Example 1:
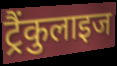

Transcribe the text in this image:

ट्रैंकुलाइज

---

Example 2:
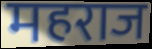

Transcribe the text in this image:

महराज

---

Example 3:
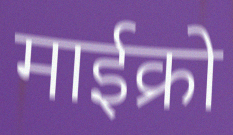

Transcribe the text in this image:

माईक्रो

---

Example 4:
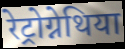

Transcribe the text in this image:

रेट्रोग्नेथिया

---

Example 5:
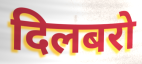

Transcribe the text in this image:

दिलबरो